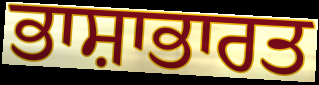
ਭਾਸ਼ਾਭਾਰਤ